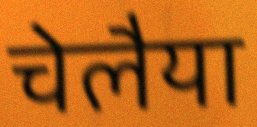
चेलैया